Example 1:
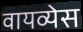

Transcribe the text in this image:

वायव्येस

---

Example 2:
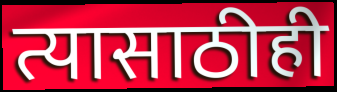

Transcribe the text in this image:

त्यासाठीही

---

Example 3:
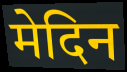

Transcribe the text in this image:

मेदिन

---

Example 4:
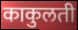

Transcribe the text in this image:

काकुलती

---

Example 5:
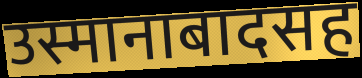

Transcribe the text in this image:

उस्मानाबादसह